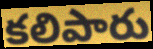
కలిపారు